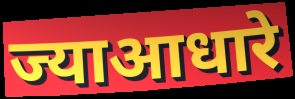
ज्याआधारे